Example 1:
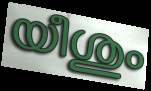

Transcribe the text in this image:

യീശും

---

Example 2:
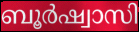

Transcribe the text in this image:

ബൂർഷ്വാസി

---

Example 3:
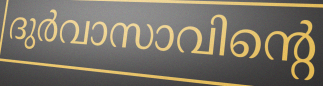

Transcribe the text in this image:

ദുർവാസാവിന്റെ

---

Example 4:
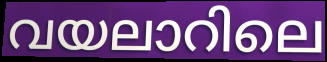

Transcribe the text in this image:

വയലാറിലെ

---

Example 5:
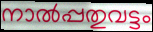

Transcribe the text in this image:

നാൽപ്പതുവട്ടം